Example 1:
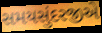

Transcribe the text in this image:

સમયસુંદરજીએ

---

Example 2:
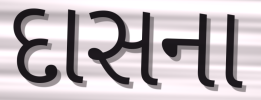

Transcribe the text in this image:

દાસના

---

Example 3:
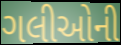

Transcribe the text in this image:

ગલીઓની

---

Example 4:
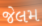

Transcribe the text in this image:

જેલમ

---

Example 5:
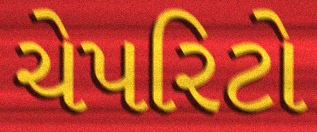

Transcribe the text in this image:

ચેપરિટો